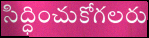
సిద్ధించుకోగలరు